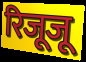
रिजूजू